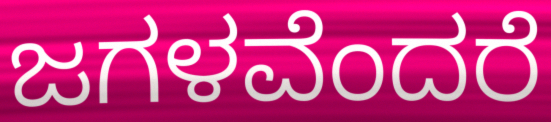
ಜಗಳವೆಂದರೆ